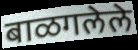
बाळगलेले